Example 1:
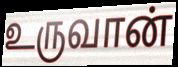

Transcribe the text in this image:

உருவான்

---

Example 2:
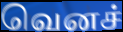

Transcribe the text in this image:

வெனச்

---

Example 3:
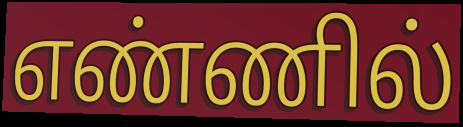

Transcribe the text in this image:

எண்ணில்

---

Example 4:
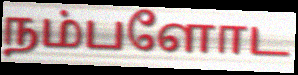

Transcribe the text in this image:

நம்பளோட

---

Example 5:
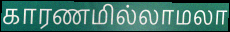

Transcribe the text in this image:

காரணமில்லாமலா